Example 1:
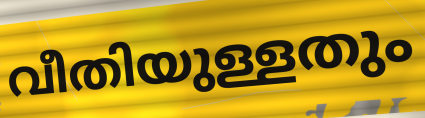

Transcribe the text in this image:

വീതിയുള്ളതും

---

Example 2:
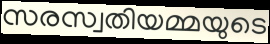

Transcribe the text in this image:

സരസ്വതിയമ്മയുടെ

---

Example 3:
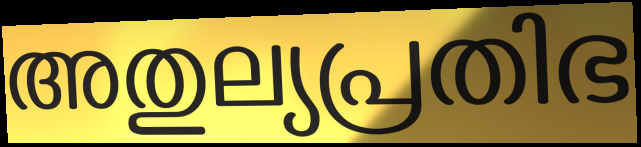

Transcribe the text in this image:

അതുല്യപ്രതിഭ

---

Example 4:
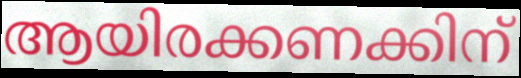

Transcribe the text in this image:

ആയിരക്കണക്കിന്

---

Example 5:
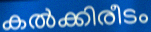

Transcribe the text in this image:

കൽക്കിരീടം